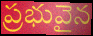
ప్రభువైన